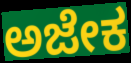
ಅಜೇಕ